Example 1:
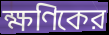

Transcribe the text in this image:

ক্ষণিকের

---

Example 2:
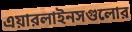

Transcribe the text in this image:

এয়ারলাইনসগুলোর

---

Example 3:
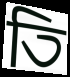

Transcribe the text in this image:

তি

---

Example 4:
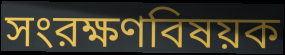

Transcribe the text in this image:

সংরক্ষণবিষয়ক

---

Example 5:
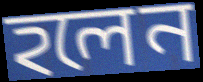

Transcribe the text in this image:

হলেন